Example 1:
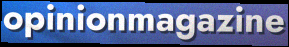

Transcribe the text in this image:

opinionmagazine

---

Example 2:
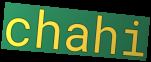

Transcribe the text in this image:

chahi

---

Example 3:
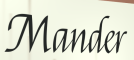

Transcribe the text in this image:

Mander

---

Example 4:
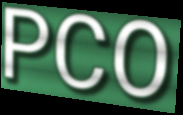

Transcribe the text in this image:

PCO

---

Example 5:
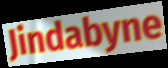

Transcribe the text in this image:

Jindabyne